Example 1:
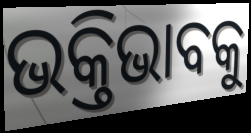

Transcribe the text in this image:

ଭକ୍ତିଭାବକୁ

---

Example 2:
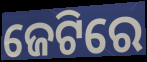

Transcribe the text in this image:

ଜେଟିରେ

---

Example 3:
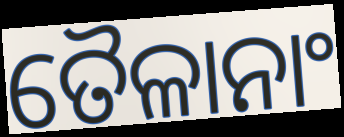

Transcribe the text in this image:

ତୈଳାନାଂ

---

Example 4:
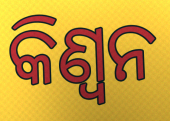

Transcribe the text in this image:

କିଣ୍ୱନ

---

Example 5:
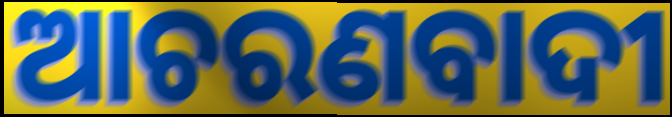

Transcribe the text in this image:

ଆଚରଣବାଦୀ